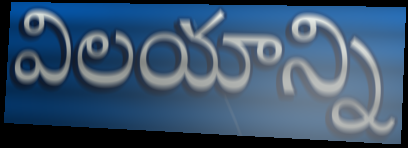
విలయాన్ని